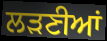
ਲੜਣੀਆਂ